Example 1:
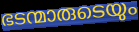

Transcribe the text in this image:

ഭടന്മാരുടെയും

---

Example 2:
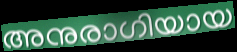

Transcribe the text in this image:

അനുരാഗിയായ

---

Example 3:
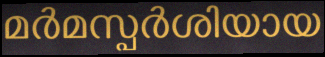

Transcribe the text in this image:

മർമസ്പർശിയായ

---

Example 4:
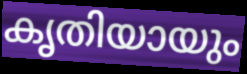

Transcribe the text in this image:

കൃതിയായും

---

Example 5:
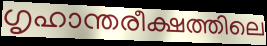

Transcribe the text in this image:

ഗൃഹാന്തരീക്ഷത്തിലെ